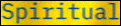
Spiritual